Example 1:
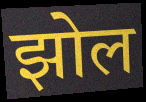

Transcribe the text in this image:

झोल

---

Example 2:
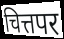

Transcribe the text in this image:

चित्तपर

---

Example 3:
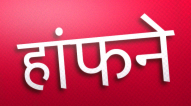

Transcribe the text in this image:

हांफने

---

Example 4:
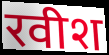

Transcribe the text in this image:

रवीश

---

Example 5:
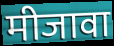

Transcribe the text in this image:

मीजावा